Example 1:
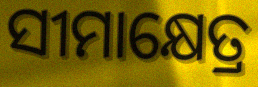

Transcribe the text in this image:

ସୀମାକ୍ଷେତ୍ର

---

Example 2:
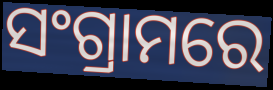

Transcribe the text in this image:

ସଂଗ୍ରାମରେ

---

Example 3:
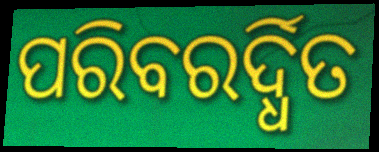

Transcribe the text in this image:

ପରିବରର୍ଦ୍ଧିତ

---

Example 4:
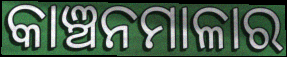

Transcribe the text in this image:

କାଞ୍ଚନମାଳାର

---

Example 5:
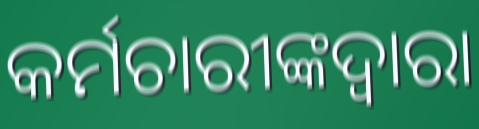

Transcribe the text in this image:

କର୍ମଚାରୀଙ୍କଦ୍ୱାରା